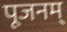
पूजनम्